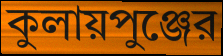
কুলায়পুঞ্জের